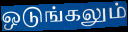
ஒடுங்கலும்